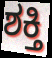
ಶಕ್ತಿ